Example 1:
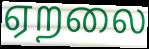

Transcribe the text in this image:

ஏறலை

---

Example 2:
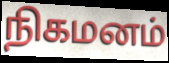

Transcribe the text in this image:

நிகமனம்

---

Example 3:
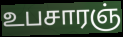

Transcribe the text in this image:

உபசாரஞ்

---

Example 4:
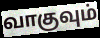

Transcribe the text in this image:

வாகுவும்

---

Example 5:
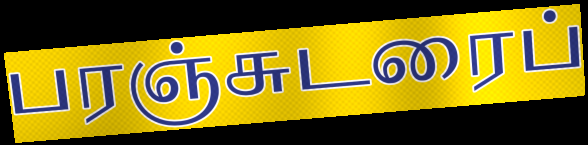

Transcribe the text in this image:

பரஞ்சுடரைப்